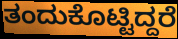
ತಂದುಕೊಟ್ಟಿದ್ದರೆ